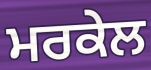
ਮਰਕੇਲ